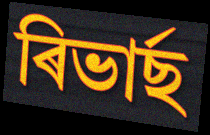
ৰিভাৰ্ছ